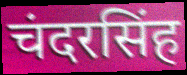
चंदरसिंह